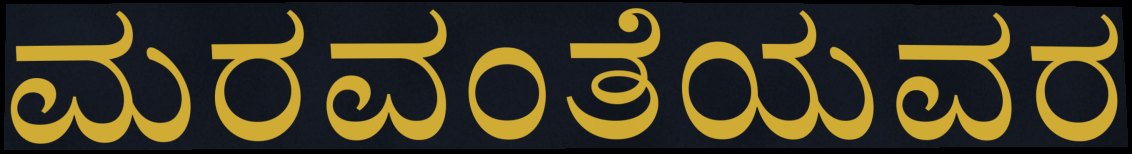
ಮರವಂತೆಯವರ